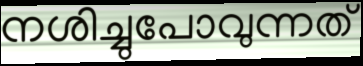
നശിച്ചുപോവുന്നത്